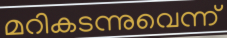
മറികടന്നുവെന്ന്